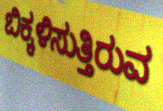
ಬಿಕ್ಕಳಿಸುತ್ತಿರುವ